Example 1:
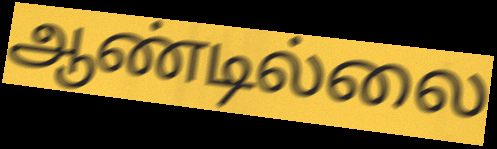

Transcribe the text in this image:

ஆண்டில்லை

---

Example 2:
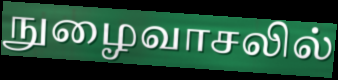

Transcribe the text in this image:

நுழைவாசலில்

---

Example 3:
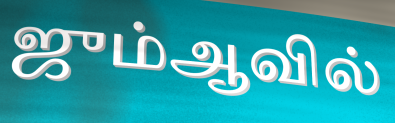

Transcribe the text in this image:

ஜும்ஆவில்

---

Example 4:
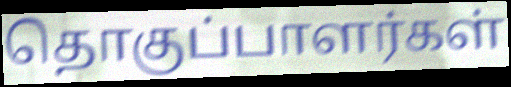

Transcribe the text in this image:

தொகுப்பாளர்கள்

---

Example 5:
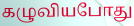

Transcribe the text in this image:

கழுவியபோது